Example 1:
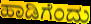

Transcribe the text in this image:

ಹಾಡಿಗೆಂದು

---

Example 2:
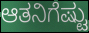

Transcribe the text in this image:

ಆತನಿಗೆಷ್ಟು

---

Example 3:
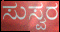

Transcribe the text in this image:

ಸುಸ್ವರ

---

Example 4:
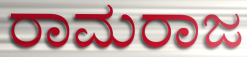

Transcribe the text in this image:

ರಾಮರಾಜ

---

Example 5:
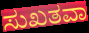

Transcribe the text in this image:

ಸುಖತವಾ